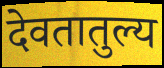
देवतातुल्य